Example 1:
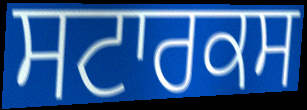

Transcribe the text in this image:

ਸਟਾਰਕਸ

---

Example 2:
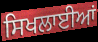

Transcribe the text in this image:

ਸਿਖਲਾਈਆਂ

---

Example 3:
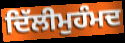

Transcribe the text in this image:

ਦਿੱਲੀਮੁਹੰਮਦ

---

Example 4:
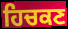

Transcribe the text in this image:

ਹਿਚਕਣ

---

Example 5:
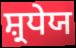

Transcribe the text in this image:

ਸ਼੍ਰਧੇਯ